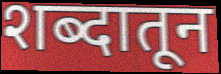
शब्दातून